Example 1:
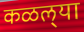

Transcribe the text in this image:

कळल्या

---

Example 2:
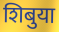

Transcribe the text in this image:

शिबुया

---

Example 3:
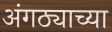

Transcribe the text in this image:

अंगठ्याच्या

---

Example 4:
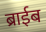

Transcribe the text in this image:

ब्राईब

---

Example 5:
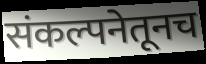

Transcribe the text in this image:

संकल्पनेतूनच